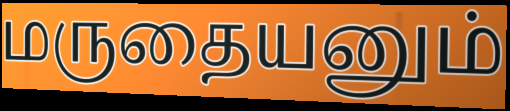
மருதையனும்